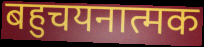
बहुचयनात्मक